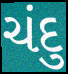
ચંદુ